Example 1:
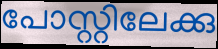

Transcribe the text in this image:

പോസ്റ്റിലേക്കു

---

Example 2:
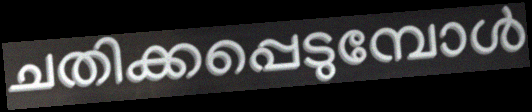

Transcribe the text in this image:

ചതിക്കപ്പെടുമ്പോൾ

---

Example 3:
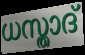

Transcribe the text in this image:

ധസ്താദ്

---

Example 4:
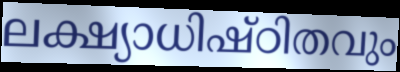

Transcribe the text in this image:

ലക്ഷ്യാധിഷ്ഠിതവും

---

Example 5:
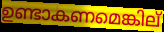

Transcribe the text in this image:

ഉണ്ടാകണമെങ്കില്